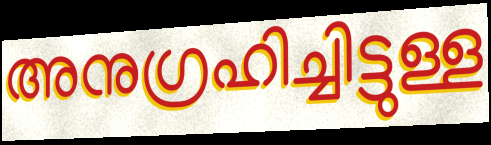
അനുഗ്രഹിച്ചിട്ടുള്ള